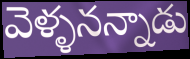
వెళ్ళనన్నాడు